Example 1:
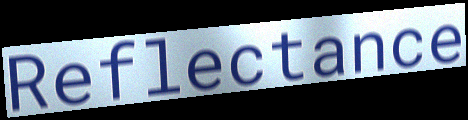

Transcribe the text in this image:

Reflectance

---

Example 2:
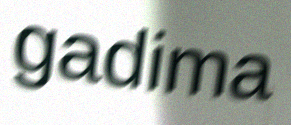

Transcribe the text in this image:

gadima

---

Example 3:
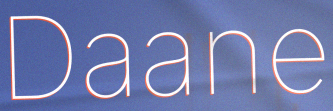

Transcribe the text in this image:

Daane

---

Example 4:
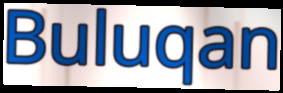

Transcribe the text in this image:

Buluqan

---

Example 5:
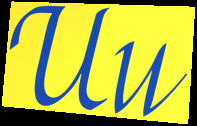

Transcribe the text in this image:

Uu